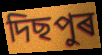
দিছপুৰ